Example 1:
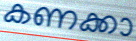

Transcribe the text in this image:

കണക്കാ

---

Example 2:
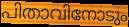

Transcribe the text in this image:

പിതാവിനോടും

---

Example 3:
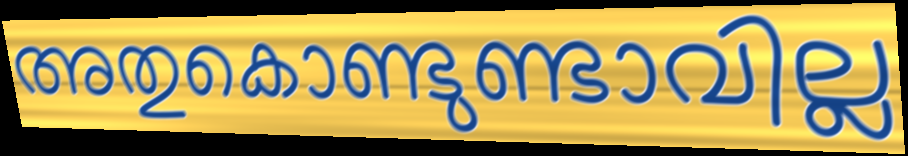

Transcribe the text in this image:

അതുകൊണ്ടുണ്ടാവില്ല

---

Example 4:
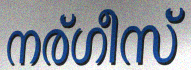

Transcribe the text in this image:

നര്ഗീസ്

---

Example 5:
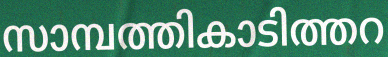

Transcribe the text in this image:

സാമ്പത്തികാടിത്തറ